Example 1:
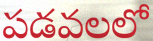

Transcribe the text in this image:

పడవలలో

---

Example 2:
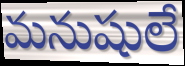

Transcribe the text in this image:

మనుషులే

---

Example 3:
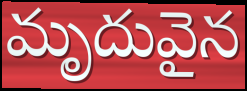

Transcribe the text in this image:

మృదువైన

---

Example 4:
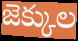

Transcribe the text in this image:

జెక్కుల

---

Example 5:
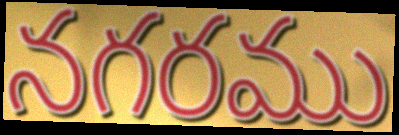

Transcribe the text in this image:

నగరము